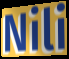
Nili